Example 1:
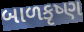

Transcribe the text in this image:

બાળકૃષ્ણ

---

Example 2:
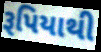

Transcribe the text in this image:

રૂપિયાથી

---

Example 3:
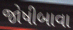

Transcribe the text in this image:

જોષીબાવા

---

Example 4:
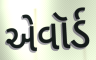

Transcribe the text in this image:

એવૉર્ડ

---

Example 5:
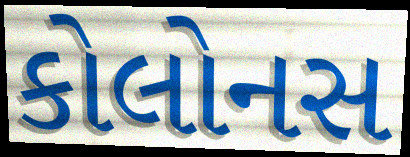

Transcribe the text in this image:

કોલોનસ